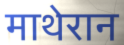
माथेरान